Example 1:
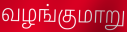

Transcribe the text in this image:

வழங்குமாறு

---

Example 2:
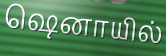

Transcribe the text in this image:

ஷெனாயில்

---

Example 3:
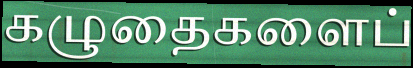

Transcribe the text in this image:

கழுதைகளைப்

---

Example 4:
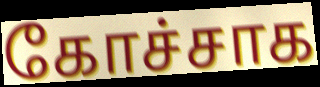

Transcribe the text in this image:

கோச்சாக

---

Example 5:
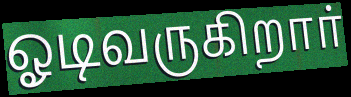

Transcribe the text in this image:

ஓடிவருகிறார்